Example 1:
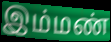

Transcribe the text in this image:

இம்மண்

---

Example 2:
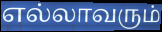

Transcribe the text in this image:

எல்லாவரும்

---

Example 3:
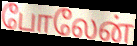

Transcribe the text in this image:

போலேன்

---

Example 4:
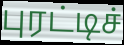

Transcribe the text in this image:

புரட்டிச்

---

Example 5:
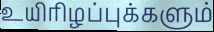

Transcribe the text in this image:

உயிரிழப்புக்களும்